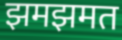
झमझमत